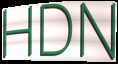
HDN